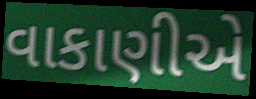
વાકાણીએ